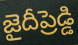
జైదీప్రెడ్డి